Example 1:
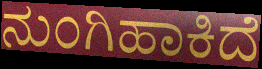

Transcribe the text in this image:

ನುಂಗಿಹಾಕಿದೆ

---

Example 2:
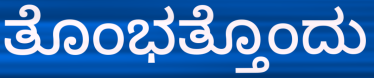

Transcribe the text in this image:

ತೊಂಭತ್ತೊಂದು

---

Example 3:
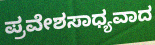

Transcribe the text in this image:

ಪ್ರವೇಶಸಾಧ್ಯವಾದ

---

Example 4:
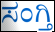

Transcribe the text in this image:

ಸಂಗ್ತಿ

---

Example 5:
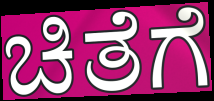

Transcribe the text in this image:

ಚಿತೆಗೆ